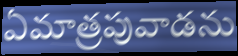
ఏమాత్రపువాడను